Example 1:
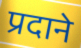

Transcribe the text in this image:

प्रदाने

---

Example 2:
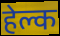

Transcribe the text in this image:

हेल्क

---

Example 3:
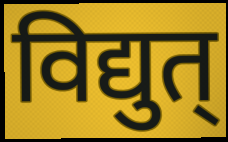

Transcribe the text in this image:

विद्युत्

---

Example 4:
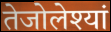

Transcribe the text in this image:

तेजोलेश्यां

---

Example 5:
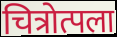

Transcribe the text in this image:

चित्रोत्पला